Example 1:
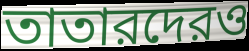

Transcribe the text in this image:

তাতারদেরও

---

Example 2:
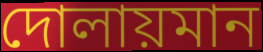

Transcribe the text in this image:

দোলায়মান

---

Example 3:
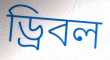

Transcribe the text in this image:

ড্রিবল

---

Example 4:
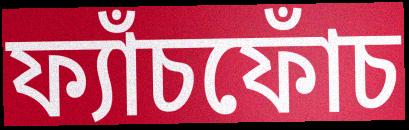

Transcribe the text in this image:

ফ্যাঁচফোঁচ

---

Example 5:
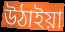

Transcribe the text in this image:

উঠাইয়া